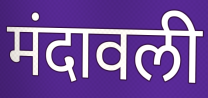
मंदावली